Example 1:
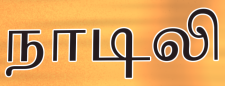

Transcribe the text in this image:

நாடிலி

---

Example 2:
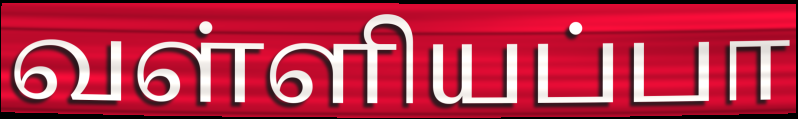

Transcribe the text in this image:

வள்ளியப்பா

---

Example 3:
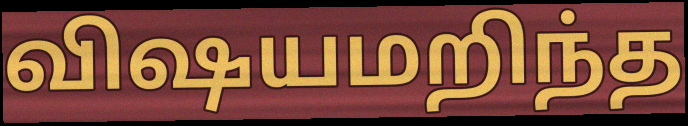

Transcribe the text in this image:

விஷயமறிந்த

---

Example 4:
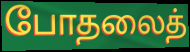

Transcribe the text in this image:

போதலைத்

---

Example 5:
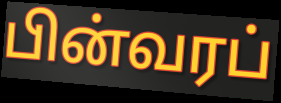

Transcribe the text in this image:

பின்வரப்